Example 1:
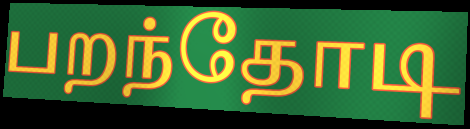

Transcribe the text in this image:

பறந்தோடி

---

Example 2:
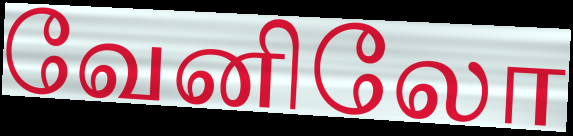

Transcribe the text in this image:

வேனிலோ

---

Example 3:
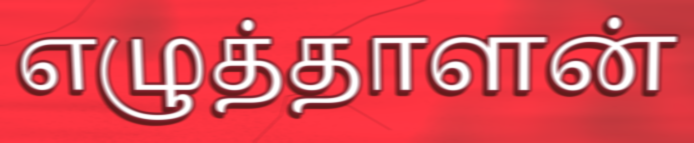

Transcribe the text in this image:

எழுத்தாளன்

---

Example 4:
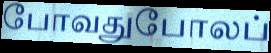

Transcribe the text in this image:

போவதுபோலப்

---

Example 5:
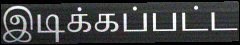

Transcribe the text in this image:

இடிக்கப்பட்ட